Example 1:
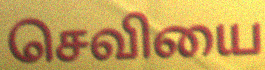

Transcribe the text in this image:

செவியை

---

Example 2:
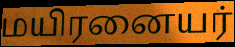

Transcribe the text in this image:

மயிரனையர்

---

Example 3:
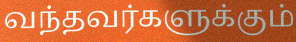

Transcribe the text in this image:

வந்தவர்களுக்கும்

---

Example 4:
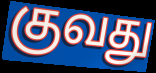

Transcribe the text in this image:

குவது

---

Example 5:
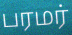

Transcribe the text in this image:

பரமர்